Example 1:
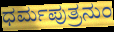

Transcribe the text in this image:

ಧರ್ಮಪುತ್ರನುಂ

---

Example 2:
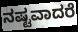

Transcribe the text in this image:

ನಷ್ಟವಾದರೆ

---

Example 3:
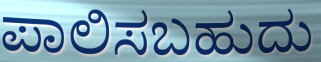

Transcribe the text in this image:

ಪಾಲಿಸಬಹುದು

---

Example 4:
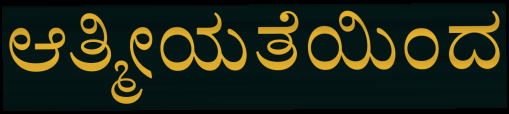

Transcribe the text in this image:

ಆತ್ಮೀಯತೆಯಿಂದ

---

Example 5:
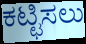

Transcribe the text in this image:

ಕಟ್ಟಿಸಲು